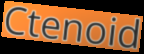
Ctenoid